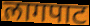
लागपाट